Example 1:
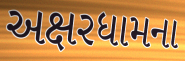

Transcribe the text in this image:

અક્ષરધામના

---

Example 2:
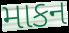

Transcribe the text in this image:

માકન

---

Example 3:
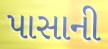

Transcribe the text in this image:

પાસાની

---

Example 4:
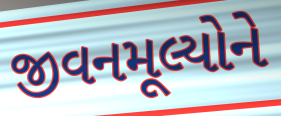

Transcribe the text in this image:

જીવનમૂલ્યોને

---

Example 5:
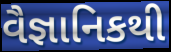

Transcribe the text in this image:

વૈજ્ઞાનિકથી